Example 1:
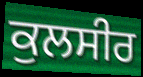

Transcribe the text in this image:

ਕੁਲਸੀਰ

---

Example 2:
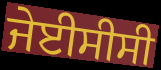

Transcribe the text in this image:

ਜੇਈਸੀਸੀ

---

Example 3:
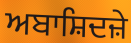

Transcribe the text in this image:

ਅਬਾਸ਼ਿਦਜ਼ੇ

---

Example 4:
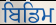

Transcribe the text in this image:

ਬਿਡਿਮ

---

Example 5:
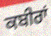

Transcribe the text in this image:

ਕਬੀਰਾਂ